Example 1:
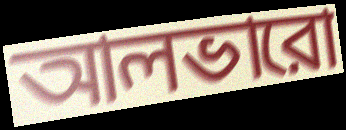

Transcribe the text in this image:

আলভারো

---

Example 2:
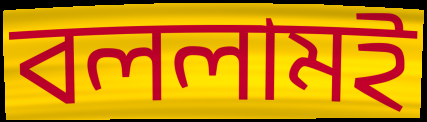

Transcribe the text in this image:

বললামই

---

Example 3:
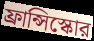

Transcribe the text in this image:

ফ্রান্সিস্কোর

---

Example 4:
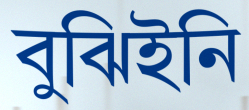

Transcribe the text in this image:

বুঝিইনি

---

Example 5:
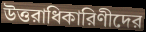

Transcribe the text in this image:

উত্তরাধিকারিণীদের